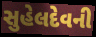
સુહેલદેવની